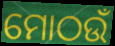
ମୋଠଉଁ